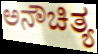
ಅನೌಚಿತ್ಯ